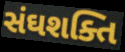
સંઘશક્તિ